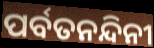
ପର୍ବତନନ୍ଦିନୀ